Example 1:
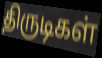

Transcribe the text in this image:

திருடிகள்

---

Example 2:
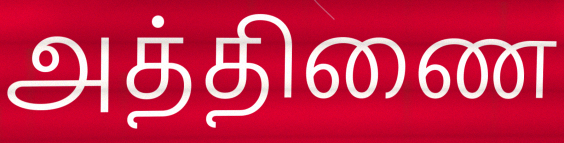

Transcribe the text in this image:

அத்திணை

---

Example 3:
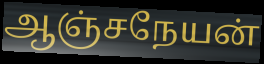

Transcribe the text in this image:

ஆஞ்சநேயன்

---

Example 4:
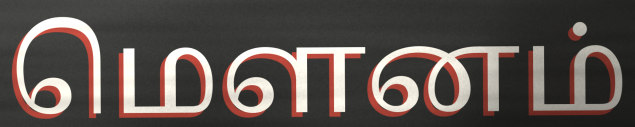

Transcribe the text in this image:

மௌனம்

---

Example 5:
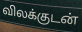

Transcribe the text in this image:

விலக்குடன்